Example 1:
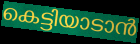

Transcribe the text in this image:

കെട്ടിയാടാൻ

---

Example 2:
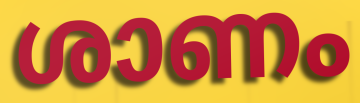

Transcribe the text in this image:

ശാണം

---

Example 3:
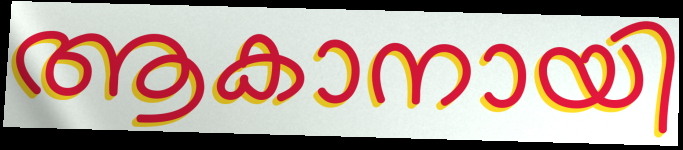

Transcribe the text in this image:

ആകാനായി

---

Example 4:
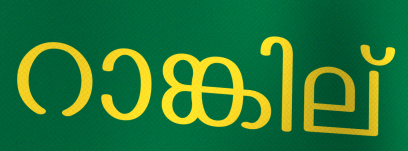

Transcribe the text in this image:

റാങ്കില്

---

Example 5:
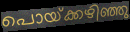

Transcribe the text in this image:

പൊയ്‌ക്കഴിഞ്ഞു